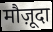
मौज़ूदा